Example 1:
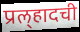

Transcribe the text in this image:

प्रल्हादची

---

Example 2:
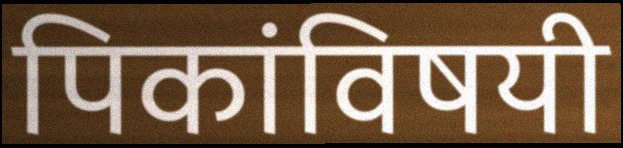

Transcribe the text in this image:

पिकांविषयी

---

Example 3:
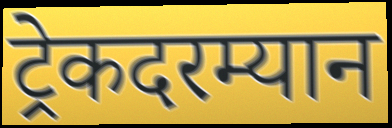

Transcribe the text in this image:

ट्रेकदरम्यान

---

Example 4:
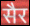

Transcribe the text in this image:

सैर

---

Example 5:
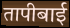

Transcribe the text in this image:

तापीबाई